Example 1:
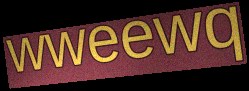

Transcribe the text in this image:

wweewq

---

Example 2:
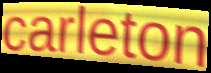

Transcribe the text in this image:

carleton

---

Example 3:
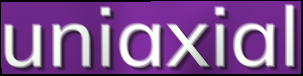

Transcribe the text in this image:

uniaxial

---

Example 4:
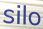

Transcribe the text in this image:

silo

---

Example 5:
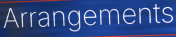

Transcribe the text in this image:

Arrangements